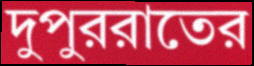
দুপুররাতের